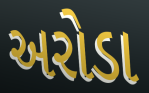
અરોડા